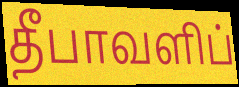
தீபாவளிப்